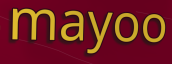
mayoo